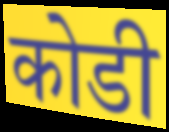
कोडी